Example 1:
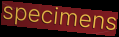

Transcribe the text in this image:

specimens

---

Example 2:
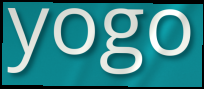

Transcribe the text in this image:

yogo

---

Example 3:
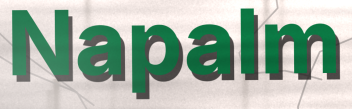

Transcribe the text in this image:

Napalm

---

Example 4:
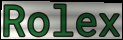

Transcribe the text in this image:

Rolex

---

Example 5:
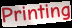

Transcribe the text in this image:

Printing